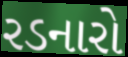
રડનારો